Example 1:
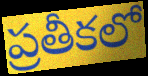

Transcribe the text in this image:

ప్రతీకలో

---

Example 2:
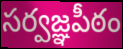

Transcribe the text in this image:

సర్వజ్ఞపీఠం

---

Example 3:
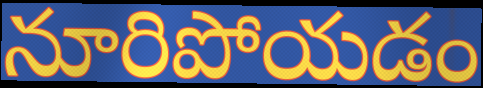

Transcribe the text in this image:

నూరిపోయడం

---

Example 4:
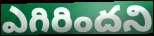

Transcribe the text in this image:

ఎగిరిందని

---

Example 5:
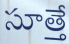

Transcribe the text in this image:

సూత్తే